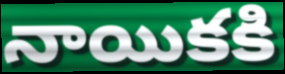
నాయికకి